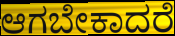
ಆಗಬೇಕಾದರೆ